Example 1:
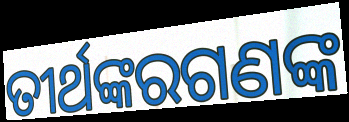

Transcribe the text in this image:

ତୀର୍ଥଙ୍କରଗଣଙ୍କ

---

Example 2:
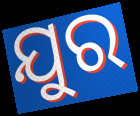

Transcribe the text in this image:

ଯୁର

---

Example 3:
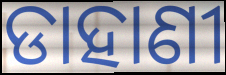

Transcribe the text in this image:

ଡାହାଣୀ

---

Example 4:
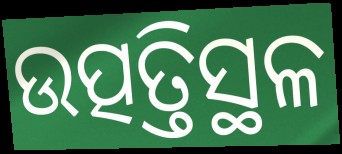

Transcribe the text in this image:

ଉତ୍ପତ୍ତିସ୍ଥଳ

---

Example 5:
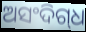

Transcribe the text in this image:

ଅସଂଦିଗ୍‌ଧ